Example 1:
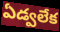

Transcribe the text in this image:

ఏడ్వలేక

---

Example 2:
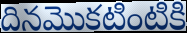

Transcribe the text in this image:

దినమొకటింటికి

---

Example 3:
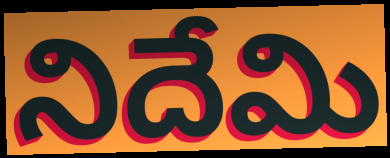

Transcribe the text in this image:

నిదేమి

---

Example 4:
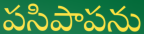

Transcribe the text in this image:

పసిపాపను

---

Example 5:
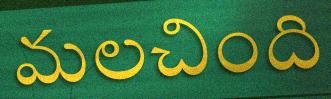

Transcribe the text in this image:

మలచింది